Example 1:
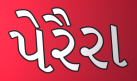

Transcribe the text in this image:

પેરૈરા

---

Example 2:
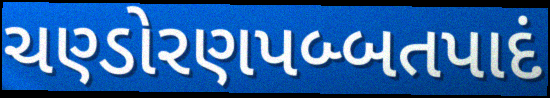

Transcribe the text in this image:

ચણ્ડોરણપબ્બતપાદં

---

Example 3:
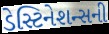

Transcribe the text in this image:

ડેસ્ટિનેશન્સની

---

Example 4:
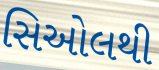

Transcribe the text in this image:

સિઓલથી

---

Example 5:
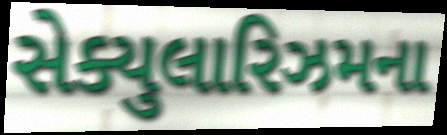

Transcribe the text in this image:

સેક્યુલારિઝમના